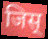
जिस्